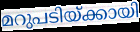
മറുപടിയ്ക്കായി